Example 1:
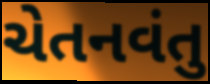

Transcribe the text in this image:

ચેતનવંતુ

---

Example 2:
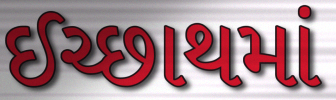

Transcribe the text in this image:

ઈચ્છાથમાં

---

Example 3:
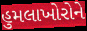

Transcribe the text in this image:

હુમલાખોરોને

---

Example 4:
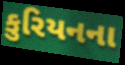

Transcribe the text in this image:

કુરિયનના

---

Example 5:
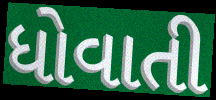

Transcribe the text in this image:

ધોવાતી